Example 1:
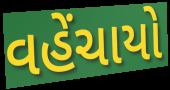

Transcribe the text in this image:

વહેંચાયો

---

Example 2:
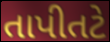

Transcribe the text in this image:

તાપીતટે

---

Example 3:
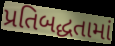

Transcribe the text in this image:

પ્રતિબદ્ધતામાં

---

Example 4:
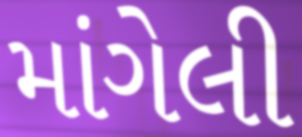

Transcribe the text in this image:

માંગેલી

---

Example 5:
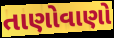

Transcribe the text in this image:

તાણોવાણો